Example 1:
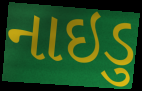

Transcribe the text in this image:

નાઇડુ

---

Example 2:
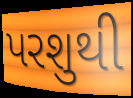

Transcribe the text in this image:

પરશુથી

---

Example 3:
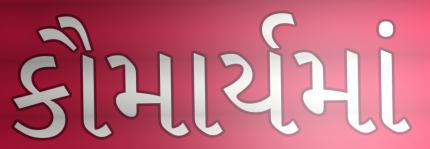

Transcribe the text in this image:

કૌમાર્યમાં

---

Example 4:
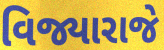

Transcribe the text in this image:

વિજ્યારાજે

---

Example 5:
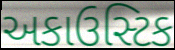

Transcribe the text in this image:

અકાઉસ્ટિક